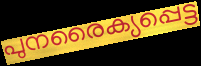
പുനരൈക്യപ്പെട്ട